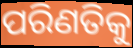
ପରିଣତିକୁ